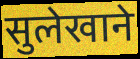
सुलेखाने